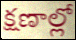
క్షణాల్లో